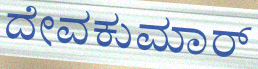
ದೇವಕುಮಾರ್